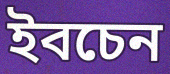
ইবচেন